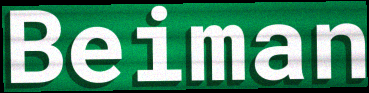
Beiman